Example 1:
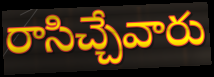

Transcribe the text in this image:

రాసిచ్చేవారు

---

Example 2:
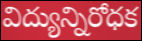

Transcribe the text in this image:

విద్యున్నిరోధక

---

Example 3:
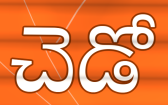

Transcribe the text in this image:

చెడో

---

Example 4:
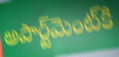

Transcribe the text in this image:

అపార్ట్‌మెంట్‌కి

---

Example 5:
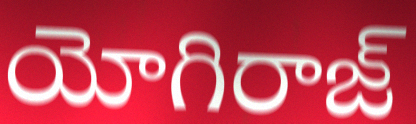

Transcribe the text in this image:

యోగిరాజ్